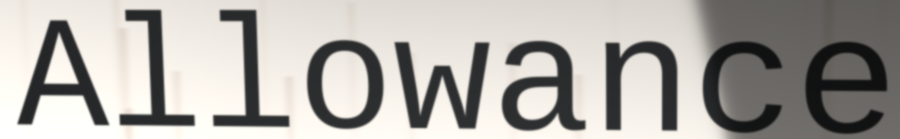
Allowance